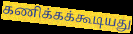
கணிக்கக்கூடியது